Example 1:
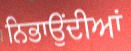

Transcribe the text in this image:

ਨਿਭਾਉਂਦੀਆਂ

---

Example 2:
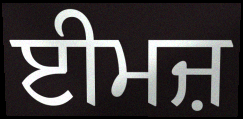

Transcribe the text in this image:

ਈਮਜ਼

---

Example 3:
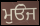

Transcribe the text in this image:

ਮੁਓੋਜ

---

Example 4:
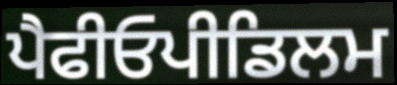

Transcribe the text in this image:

ਪੈਫੀਓਪੀਡਿਲਮ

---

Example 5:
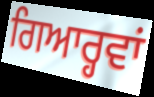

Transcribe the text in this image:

ਗਿਆਰ੍ਹਵਾਂ